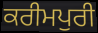
ਕਰੀਮਪੁਰੀ